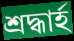
শ্রদ্ধার্হ